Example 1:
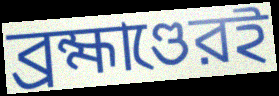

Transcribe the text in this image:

ব্রহ্মাণ্ডেরই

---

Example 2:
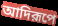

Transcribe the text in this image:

আদিরূপে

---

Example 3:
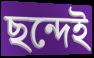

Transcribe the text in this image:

ছন্দেই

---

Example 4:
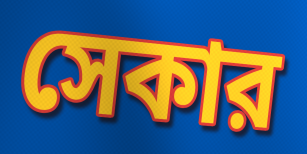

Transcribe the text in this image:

সেকার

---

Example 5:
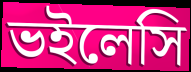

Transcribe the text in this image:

ভইলেসি